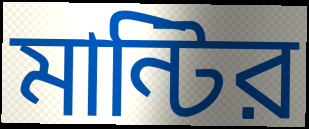
মান্টির